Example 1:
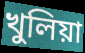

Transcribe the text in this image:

খুলিয়া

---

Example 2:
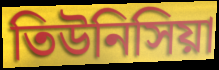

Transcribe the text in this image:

তিউনিসিয়া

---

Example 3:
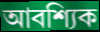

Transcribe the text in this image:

আবশ্যিক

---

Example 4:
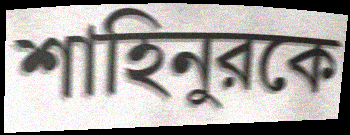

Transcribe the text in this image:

শাহিনুরকে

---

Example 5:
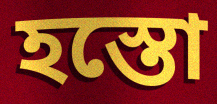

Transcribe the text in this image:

হস্তো